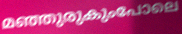
മഞ്ഞുരുകുംപോലെ